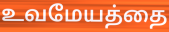
உவமேயத்தை